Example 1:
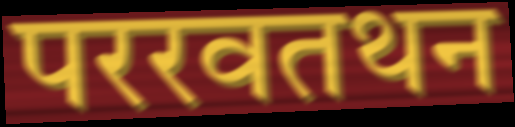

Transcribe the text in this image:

पररवतथन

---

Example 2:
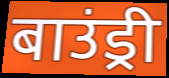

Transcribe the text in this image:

बाउंड्री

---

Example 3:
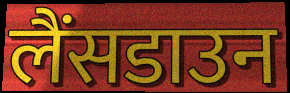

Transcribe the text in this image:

लैंसडाउन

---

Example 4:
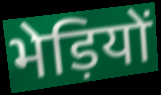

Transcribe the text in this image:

भेड़ियों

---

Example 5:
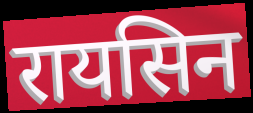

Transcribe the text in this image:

रायसिन